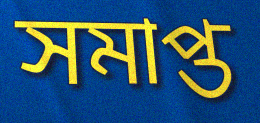
সমাপ্ত